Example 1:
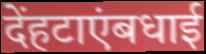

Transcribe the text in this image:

देंहटाएंबधाई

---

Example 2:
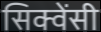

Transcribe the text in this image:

सिक्वेंसी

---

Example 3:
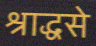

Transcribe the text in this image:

श्राद्धसे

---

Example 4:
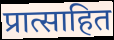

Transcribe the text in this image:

प्रात्साहित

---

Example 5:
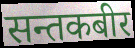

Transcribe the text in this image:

सन्तकबीर